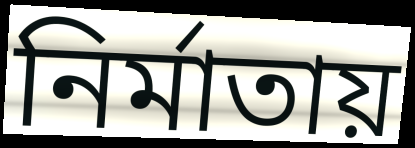
নির্মাতায়